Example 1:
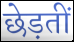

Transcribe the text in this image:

छेड़तीं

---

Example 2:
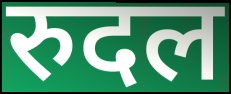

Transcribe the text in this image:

रुदल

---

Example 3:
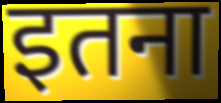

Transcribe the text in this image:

इतना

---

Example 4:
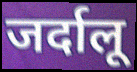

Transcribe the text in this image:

जर्दालू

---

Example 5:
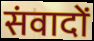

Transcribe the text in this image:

संवादों